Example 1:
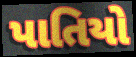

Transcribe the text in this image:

પાતિયો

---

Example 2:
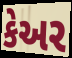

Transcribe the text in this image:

કેઅર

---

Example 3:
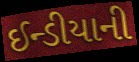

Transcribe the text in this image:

ઈન્ડીયાની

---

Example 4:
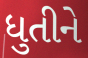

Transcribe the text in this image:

ધુતીને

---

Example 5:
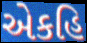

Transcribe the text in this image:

એકહિ